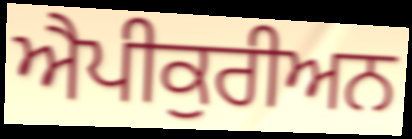
ਐਪੀਕੁਰੀਅਨ